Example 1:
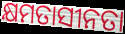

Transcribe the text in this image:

କ୍ଷମତାସୀନତା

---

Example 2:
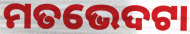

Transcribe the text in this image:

ମତଭେଦଟା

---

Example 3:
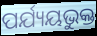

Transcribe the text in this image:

ପର୍ଯ୍ୟୟଭୁକ୍ତ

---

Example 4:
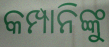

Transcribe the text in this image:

କମ୍ପାନିଙ୍କୁ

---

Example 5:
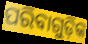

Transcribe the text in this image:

ପରିବାଗୁଡ଼ିକ